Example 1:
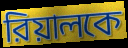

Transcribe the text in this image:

রিয়ালকে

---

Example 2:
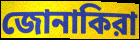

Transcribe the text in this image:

জোনাকিরা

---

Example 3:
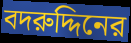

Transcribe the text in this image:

বদরুদ্দিনের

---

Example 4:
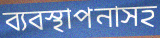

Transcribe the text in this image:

ব্যবস্থাপনাসহ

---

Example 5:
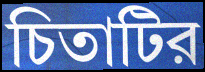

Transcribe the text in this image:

চিতাটির